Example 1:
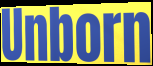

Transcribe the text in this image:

Unborn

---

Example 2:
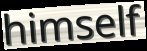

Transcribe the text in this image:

himself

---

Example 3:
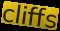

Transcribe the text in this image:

cliffs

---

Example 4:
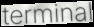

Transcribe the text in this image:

terminal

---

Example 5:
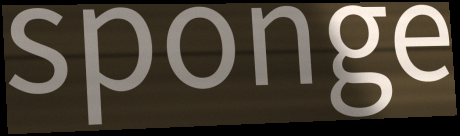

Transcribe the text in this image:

sponge